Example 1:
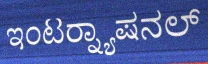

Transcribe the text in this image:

ಇಂಟರ್‍ನ್ಯಾಷನಲ್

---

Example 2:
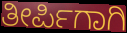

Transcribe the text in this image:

ತೀರ್ಪಿಗಾಗಿ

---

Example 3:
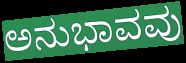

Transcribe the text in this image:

ಅನುಭಾವವು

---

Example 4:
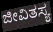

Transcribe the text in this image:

ಜೀವಿತಸ್ಯ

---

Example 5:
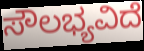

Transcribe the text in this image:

ಸೌಲಭ್ಯವಿದೆ